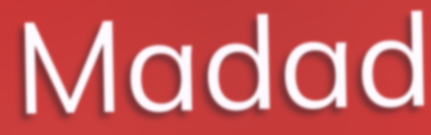
Madad